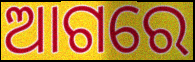
ଆଗରେ